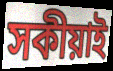
সকীয়াই